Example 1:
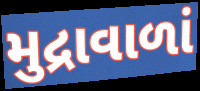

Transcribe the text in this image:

મુદ્રાવાળાં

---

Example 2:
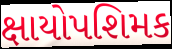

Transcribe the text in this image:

ક્ષાયોપશિમક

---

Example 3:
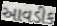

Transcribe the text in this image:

આવડીક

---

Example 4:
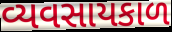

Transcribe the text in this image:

વ્યવસાયકાળ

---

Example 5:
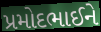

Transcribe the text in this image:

પ્રમોદભાઈને